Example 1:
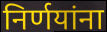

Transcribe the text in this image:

निर्णयांना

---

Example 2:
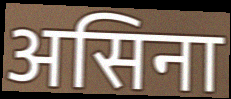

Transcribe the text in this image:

असिना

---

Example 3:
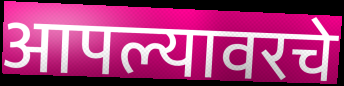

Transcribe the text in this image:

आपल्यावरचे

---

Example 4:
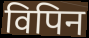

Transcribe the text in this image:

विपिन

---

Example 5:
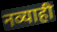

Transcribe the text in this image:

नव्याही